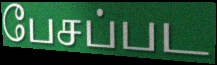
பேசப்பட